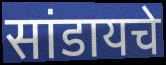
सांडायचे